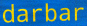
darbar